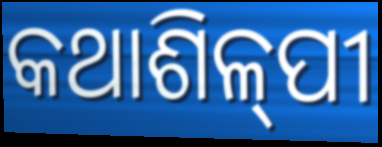
କଥାଶିଳ୍‌ପୀ